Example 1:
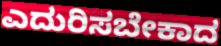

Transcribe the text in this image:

ಎದುರಿಸಬೇಕಾದ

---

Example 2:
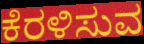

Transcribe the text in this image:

ಕೆರಳಿಸುವ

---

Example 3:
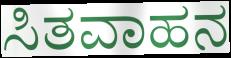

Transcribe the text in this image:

ಸಿತವಾಹನ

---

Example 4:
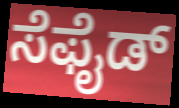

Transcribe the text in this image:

ಸೆಫೈಡ್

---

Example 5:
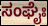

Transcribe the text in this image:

ಸಂಘೈಃ